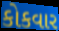
કોકવાર